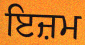
ਇਜ਼ਮ